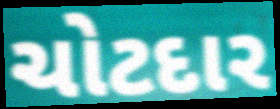
ચોટદાર